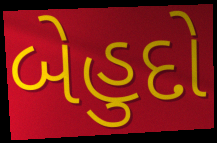
બેહુદો